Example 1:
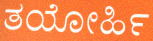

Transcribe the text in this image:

ತಯೋರ್ಹಿ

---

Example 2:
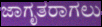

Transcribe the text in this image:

ಜಾಗೃತರಾಗಲು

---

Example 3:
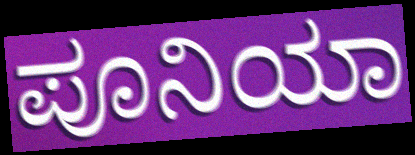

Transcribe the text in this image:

ಪೂನಿಯಾ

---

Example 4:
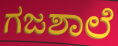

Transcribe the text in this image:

ಗಜಶಾಲೆ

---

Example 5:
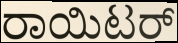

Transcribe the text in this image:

ರಾಯಿಟರ್